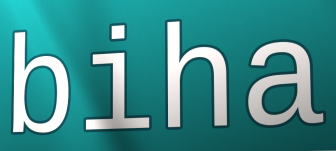
biha